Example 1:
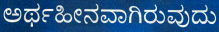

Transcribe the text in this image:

ಅರ್ಥಹೀನವಾಗಿರುವುದು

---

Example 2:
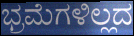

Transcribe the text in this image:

ಭ್ರಮೆಗಳಿಲ್ಲದ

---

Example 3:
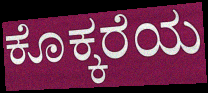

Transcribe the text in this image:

ಕೊಕ್ಕರೆಯ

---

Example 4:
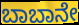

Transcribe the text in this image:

ಬಾಬಾನೇ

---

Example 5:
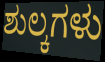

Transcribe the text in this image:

ಶುಲ್ಕಗಳು